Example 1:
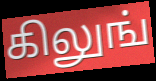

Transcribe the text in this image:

கிலுங்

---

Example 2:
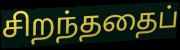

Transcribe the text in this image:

சிறந்ததைப்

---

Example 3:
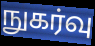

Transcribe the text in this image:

நுகர்வு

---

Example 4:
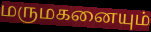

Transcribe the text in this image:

மருமகனையும்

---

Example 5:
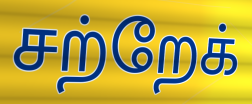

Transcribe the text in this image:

சற்றேக்